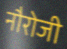
नौरोजी